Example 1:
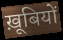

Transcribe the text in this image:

ख़ूबियों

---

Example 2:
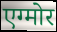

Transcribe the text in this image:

एग्मोर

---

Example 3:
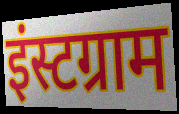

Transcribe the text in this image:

इंस्टग्राम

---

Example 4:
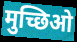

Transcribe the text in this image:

मुच्छिओ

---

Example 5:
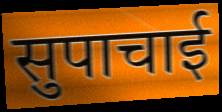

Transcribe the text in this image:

सुपाचाई